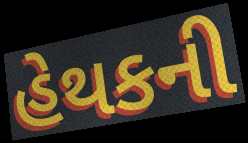
હેથકની